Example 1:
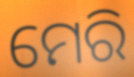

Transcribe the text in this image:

ମେରି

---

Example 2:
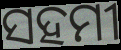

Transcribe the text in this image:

ସହମୀ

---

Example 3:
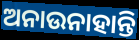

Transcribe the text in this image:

ଅନାଉନାହାନ୍ତି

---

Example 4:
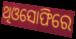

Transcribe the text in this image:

ଥିଓସୋଫିରେ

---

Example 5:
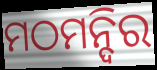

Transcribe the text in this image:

ମଠମନ୍ଦିର